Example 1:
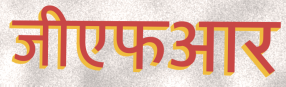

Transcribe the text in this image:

जीएफआर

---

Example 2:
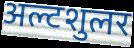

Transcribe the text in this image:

अल्टशुलर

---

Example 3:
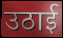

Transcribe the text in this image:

उठाई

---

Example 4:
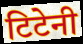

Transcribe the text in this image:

टिटेनी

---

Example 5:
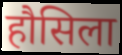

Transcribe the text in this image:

हौसिला